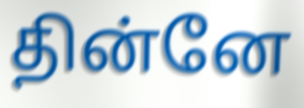
தின்னே